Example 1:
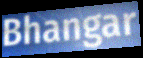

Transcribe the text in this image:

Bhangar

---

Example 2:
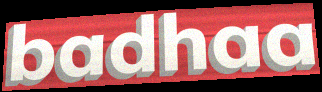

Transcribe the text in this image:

badhaa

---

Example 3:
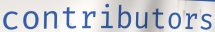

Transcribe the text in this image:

contributors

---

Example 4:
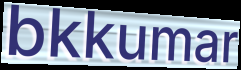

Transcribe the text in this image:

bkkumar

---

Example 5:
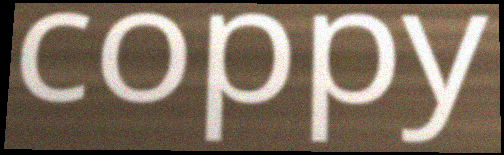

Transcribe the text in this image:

coppy